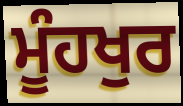
ਮੂੰਹਖੁਰ